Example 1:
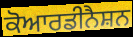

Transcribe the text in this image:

ਕੋਆਰਡੀਨੈਸ਼ਨ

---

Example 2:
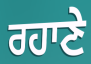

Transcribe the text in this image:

ਰਹਾਣੇ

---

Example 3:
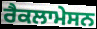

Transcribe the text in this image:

ਰੈਕਲਾਮੇਸਨ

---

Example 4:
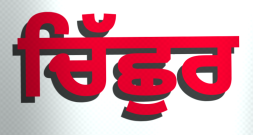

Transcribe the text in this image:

ਚਿੱਛੁਰ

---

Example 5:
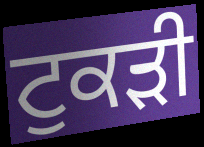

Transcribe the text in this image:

ਟੁਕਡ਼ੀ